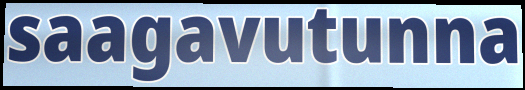
saagavutunna